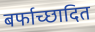
बर्फाच्छादित